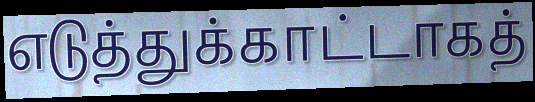
எடுத்துக்காட்டாகத்